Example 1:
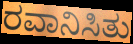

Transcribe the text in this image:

ರವಾನಿಸಿತು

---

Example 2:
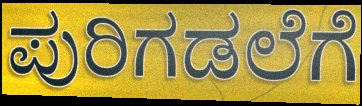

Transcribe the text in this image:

ಪುರಿಗಡಲೆಗೆ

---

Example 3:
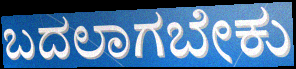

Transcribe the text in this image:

ಬದಲಾಗಬೇಕು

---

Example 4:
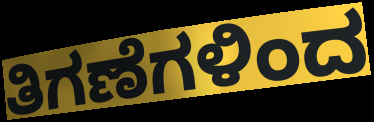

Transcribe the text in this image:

ತಿಗಣೆಗಳಿಂದ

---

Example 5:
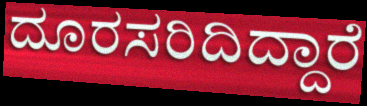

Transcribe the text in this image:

ದೂರಸರಿದಿದ್ದಾರೆ